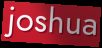
joshua